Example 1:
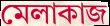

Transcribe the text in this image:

মেলাকাজ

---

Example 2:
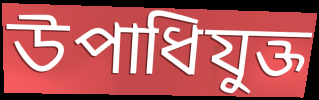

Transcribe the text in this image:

উপাধিযুক্ত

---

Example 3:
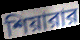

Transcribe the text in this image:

শিয়ারার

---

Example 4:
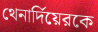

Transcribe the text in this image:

থেনার্দিয়েরকে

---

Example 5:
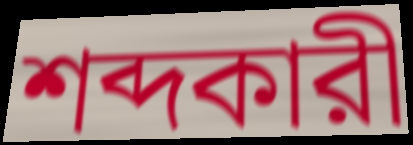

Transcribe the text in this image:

শব্দকারী